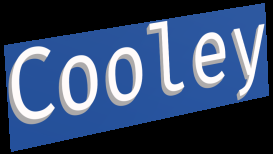
Cooley